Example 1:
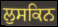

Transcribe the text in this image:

ਲੁਸਕਿਨ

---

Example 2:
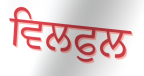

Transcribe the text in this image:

ਵਿਲਫੁਲ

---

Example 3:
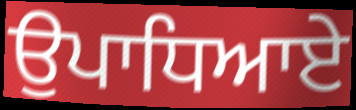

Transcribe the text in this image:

ਉਪਾਧਿਆਏ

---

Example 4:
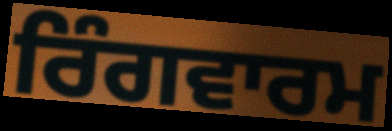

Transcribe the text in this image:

ਰਿੰਗਵਾਰਮ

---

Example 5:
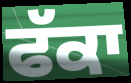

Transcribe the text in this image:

ਫੱਕਾ